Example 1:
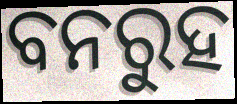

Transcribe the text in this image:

ବନରୁହ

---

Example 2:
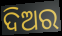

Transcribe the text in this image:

ଦିଅର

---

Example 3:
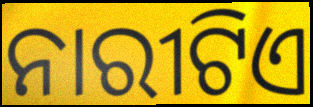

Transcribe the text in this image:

ନାରୀଟିଏ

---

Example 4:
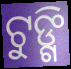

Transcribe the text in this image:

ଟୁଙ୍ଗି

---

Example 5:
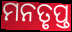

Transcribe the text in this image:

ମନତୃପ୍ତ